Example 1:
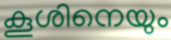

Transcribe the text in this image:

കൂശിനെയും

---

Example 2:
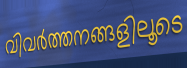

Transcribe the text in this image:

വിവർത്തനങ്ങളിലൂടെ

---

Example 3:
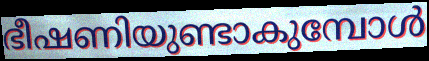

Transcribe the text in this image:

ഭീഷണിയുണ്ടാകുമ്പോൾ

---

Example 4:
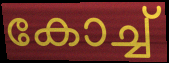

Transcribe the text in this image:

കോച്ച്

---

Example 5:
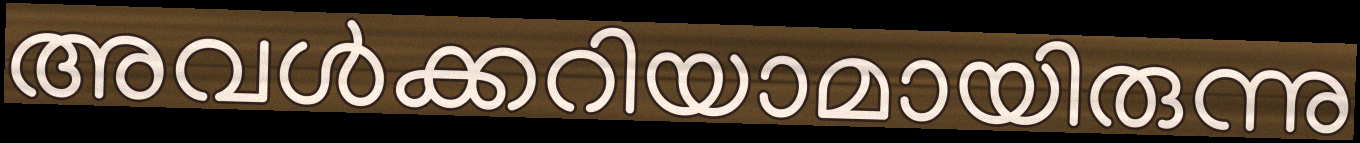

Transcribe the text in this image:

അവൾക്കറിയാമായിരുന്നു